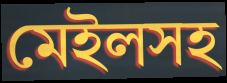
মেইলসহ